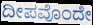
ದೀಪವೊಂದೇ